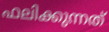
ഫലിക്കുന്നത്